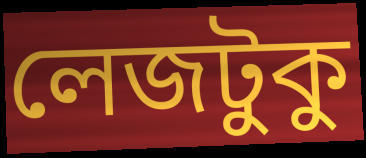
লেজটুকু